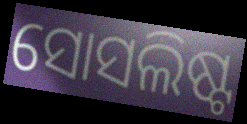
ସୋସଲିଷ୍ଟ